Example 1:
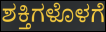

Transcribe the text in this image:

ಶಕ್ತಿಗಳೊಳಗೆ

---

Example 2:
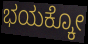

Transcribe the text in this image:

ಭಯಕ್ಕೋ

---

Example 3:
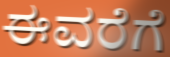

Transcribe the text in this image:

ಈವರೆಗೆ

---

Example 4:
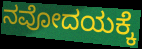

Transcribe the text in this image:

ನವೋದಯಕ್ಕೆ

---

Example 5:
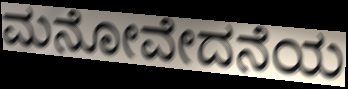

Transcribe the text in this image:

ಮನೋವೇದನೆಯ